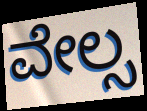
ವೇಲ್ಸ